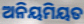
ଅନିୟମିୟତ